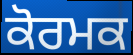
ਕੋਰਮਕ